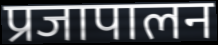
प्रजापालन